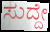
ಸುದ್ದೇ